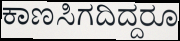
ಕಾಣಸಿಗದಿದ್ದರೂ